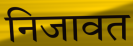
निजावत